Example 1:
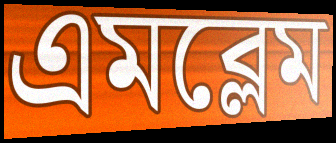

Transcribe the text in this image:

এমব্লেম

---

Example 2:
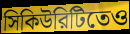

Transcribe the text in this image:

সিকিউরিটিতেও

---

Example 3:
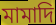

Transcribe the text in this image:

মামাদি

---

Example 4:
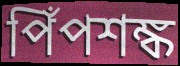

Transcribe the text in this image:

পিঁপশঙ্ক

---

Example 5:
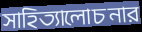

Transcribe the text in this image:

সাহিত্যালোচনার